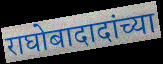
राघोबादादांच्या